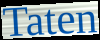
Taten